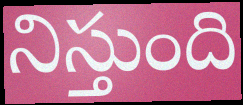
నిస్తుంది